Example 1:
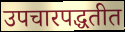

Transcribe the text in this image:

उपचारपद्धतीत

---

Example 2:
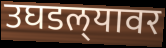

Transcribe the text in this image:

उघडल्यावर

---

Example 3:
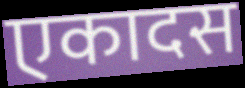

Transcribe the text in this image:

एकादस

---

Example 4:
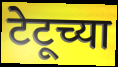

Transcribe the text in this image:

टेटूच्या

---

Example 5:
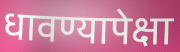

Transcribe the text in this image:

धावण्यापेक्षा